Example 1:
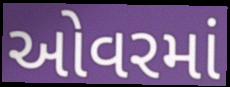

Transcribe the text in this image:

ઓવરમાં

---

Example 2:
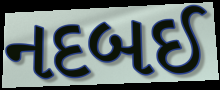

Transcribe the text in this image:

નદબઈ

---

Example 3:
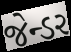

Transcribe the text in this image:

જેન્ડર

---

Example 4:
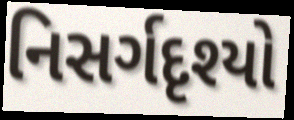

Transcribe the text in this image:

નિસર્ગદૃશ્યો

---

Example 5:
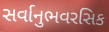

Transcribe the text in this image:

સર્વાનુભવરસિક